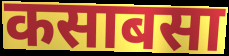
कसाबसा